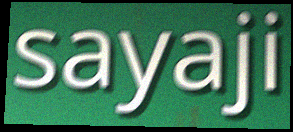
sayaji